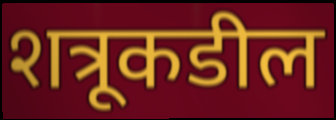
शत्रूकडील